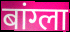
बांग्ला